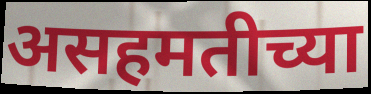
असहमतीच्या